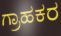
ಗ್ರಾಹಕರ